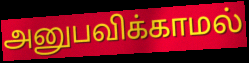
அனுபவிக்காமல்